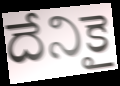
దేనికై